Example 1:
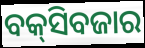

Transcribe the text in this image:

ବକ୍‍ସିବଜାର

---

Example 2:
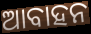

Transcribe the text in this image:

ଆବାହନ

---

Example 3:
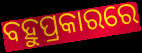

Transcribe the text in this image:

ବହୁପ୍ରକାରରେ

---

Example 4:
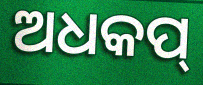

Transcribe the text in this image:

ଅଧକପ୍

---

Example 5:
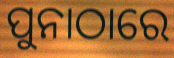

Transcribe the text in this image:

ପୁନାଠାରେ